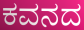
ಕವನದ